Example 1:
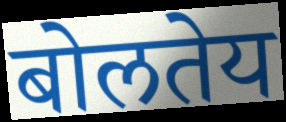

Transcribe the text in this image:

बोलतेय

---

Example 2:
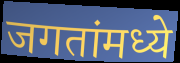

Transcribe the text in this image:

जगतांमध्ये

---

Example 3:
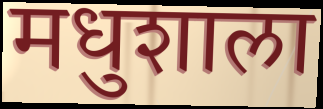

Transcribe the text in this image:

मधुशाला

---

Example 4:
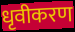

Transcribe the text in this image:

धृवीकरण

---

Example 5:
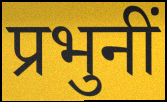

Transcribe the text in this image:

प्रभुनीं